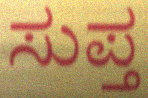
ಸುಪ್ತ